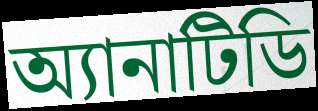
অ্যানাটিডি